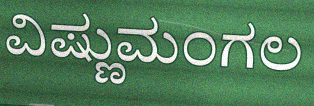
ವಿಷ್ಣುಮಂಗಲ